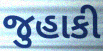
જુહાકી